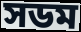
সডম